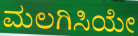
ಮಲಗಿಸಿಯೇ